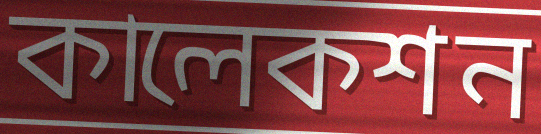
কালেকশন